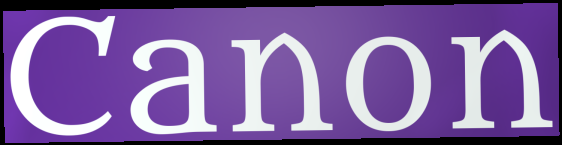
Canon